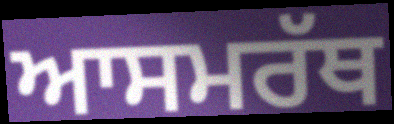
ਆਸਮਰੱਥ